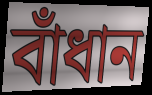
বাঁধান